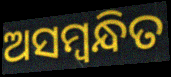
ଅସମ୍ବନ୍ଧିତ